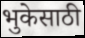
भुकेसाठी